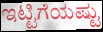
ಇಟ್ಟಿಗೆಯಷ್ಟು